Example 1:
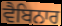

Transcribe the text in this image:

ਵੈਬਿਨਾਰ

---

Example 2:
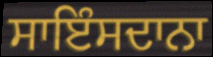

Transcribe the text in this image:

ਸਾਇੰਸਦਾਨਾ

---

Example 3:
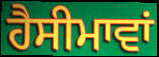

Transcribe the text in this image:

ਹੈਸੀਮਾਵਾਂ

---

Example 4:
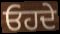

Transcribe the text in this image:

ਓਹਦੇ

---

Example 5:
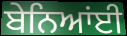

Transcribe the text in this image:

ਬੇਨਿਆਂਈ